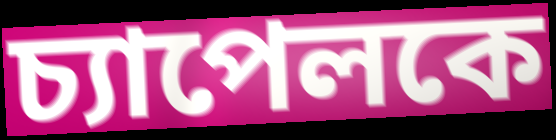
চ্যাপেলকে